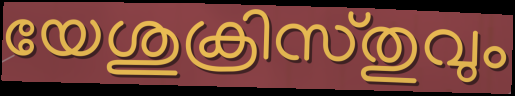
യേശുക്രിസ്തുവും